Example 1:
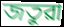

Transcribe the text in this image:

জতুৱা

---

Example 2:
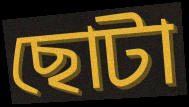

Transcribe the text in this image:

ছোটা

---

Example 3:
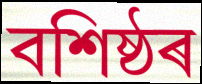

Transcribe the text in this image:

বশিষ্ঠৰ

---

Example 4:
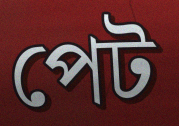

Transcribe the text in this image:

পেট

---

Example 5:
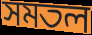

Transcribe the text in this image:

সমতল